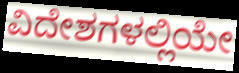
ವಿದೇಶಗಳಲ್ಲಿಯೇ